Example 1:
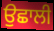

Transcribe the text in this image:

ਉਛਾਲੀ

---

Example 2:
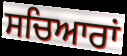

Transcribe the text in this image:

ਸਚਿਆਰਾਂ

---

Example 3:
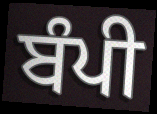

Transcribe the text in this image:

ਬੰਪੀ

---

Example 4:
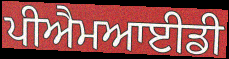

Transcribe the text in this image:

ਪੀਐਮਆਈਡੀ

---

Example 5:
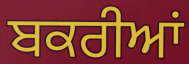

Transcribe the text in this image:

ਬਕਰੀਆਂ